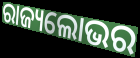
ରାଜ୍ୟଲୋଭର